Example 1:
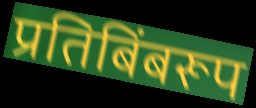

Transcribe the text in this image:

प्रतिबिंबरूप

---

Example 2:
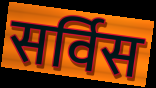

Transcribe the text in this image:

सर्विस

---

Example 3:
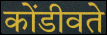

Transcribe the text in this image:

कोंडीवते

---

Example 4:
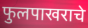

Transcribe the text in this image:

फुलपाखराचे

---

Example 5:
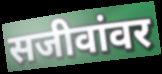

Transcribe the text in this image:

सजीवांवर